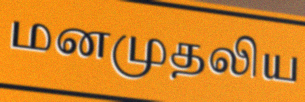
மனமுதலிய